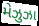
મેઝુઝા